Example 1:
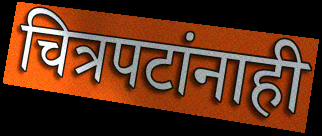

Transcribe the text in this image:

चित्रपटांनाही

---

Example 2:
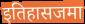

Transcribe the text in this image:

इतिहासजमा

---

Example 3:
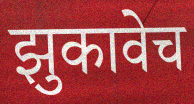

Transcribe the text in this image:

झुकावेच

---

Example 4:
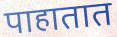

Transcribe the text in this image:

पाहातात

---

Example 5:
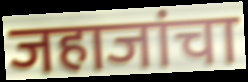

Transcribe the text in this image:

जहाजांचा